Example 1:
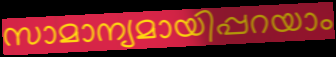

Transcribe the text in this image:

സാമാന്യമായിപ്പറയാം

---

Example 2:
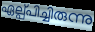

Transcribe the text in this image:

ഏല്പ്പിച്ചിരുന്നു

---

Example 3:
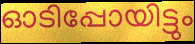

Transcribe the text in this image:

ഓടിപ്പോയിട്ടും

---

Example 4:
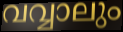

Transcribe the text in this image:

വവ്വാലും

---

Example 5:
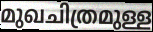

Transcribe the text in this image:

മുഖചിത്രമുള്ള